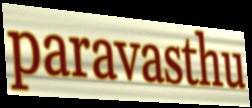
paravasthu